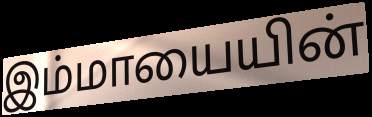
இம்மாயையின்